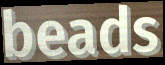
beads